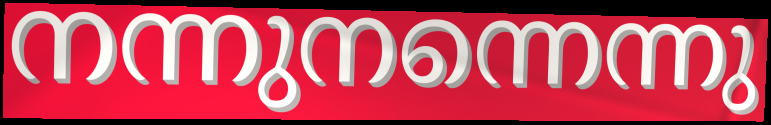
നന്നുനന്നെന്നു